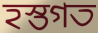
হস্তগত